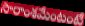
సారాంశమేంటంటే